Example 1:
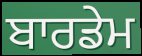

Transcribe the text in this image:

ਬਾਰਡੇਮ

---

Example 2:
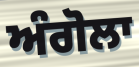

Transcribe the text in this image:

ਅੰਗੋਲਾ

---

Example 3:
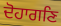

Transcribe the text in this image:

ਦੋਹਾਗਣਿ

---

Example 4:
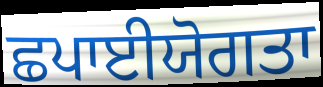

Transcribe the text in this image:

ਛਪਾਈਯੋਗਤਾ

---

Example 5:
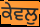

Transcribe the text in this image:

ਕੇਵਲੁ